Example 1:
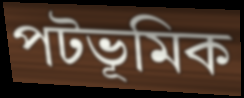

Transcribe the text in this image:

পটভূমিক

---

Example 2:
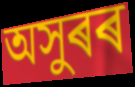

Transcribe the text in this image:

অসুৰৰ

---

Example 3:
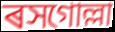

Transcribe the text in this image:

ৰসগোল্লা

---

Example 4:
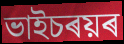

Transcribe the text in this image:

ভাইচৰয়ৰ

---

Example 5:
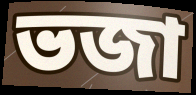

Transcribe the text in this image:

ভজা